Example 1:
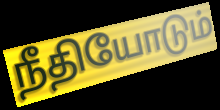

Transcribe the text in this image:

நீதியோடும்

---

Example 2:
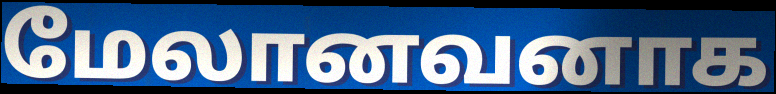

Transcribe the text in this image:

மேலானவனாக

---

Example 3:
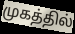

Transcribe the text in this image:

முகத்தில்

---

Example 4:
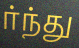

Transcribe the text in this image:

ர்ந்து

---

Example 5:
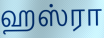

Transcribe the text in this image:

ஹஸ்ரா